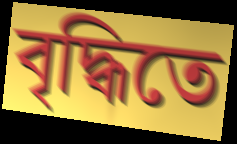
বৃদ্ধিতে